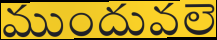
ముందువలె